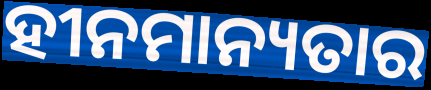
ହୀନମାନ୍ୟତାର